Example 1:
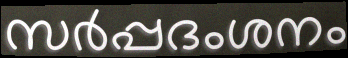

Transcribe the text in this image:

സർപ്പദംശനം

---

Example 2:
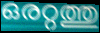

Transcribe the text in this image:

ഒരറ്റത്തു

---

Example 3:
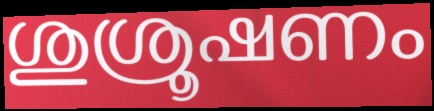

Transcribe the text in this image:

ശുശ്രൂഷണം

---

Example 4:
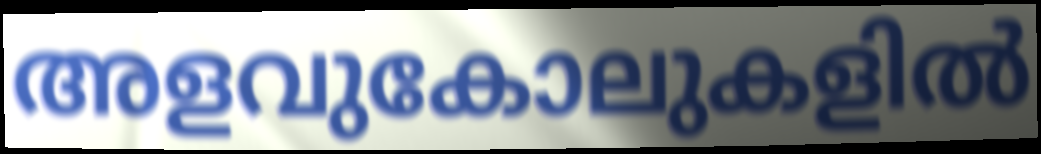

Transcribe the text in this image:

അളവുകോലുകളിൽ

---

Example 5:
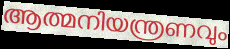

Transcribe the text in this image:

ആത്മനിയന്ത്രണവും